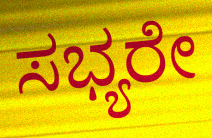
ಸಭ್ಯರೇ